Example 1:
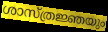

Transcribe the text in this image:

ശാസ്ത്രജ്ഞയും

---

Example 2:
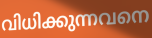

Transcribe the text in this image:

വിധിക്കുന്നവനെ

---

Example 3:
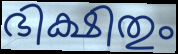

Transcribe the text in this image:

ഭിക്ഷിതും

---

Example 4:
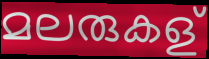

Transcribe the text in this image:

മലരുകള്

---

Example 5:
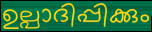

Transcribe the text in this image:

ഉല്പാദിപ്പിക്കും